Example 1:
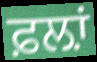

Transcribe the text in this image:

ਫ਼ਲ਼ਾਂ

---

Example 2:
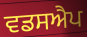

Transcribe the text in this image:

ਵਡਸਐਪ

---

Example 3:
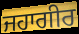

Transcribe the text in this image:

ਜਹਾਗੀਰ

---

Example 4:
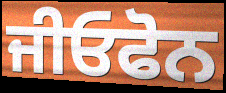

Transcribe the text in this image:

ਜੀਓਫੋਨ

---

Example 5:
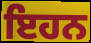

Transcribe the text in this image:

ਇਹਨ